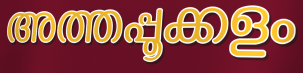
അത്തപ്പൂക്കളം